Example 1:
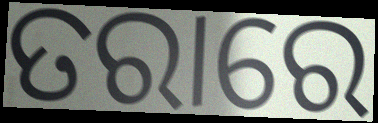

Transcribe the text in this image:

ତରାରେ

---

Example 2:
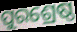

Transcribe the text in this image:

ପୁରଶ୍ରେଷ୍ଠ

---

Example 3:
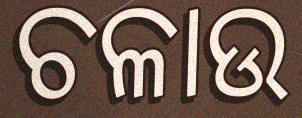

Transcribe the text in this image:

ଚଳାଉ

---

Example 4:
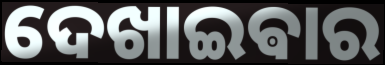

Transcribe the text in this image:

ଦେଖାଇଵାର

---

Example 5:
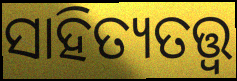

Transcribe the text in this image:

ସାହିତ୍ୟତତ୍ତ୍ୱ